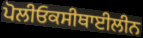
ਪੋਲੀਓਕਸੀਥਾਈਲੀਨ